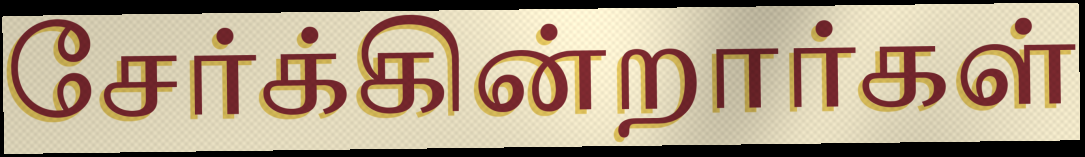
சேர்க்கின்றார்கள்